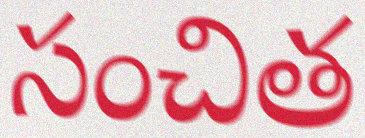
సంచిత